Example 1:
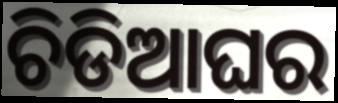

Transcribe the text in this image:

ଚିଡିଆଘର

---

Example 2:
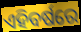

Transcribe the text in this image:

ଏହିବର୍ଷରେ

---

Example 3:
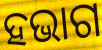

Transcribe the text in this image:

ହଭାଗ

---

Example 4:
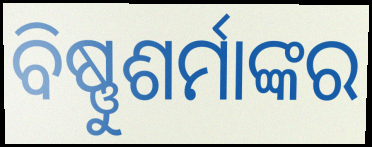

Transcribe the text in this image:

ବିଷ୍ଣୁଶର୍ମାଙ୍କର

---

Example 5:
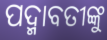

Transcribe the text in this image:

ପଦ୍ମାବତୀଙ୍କୁ